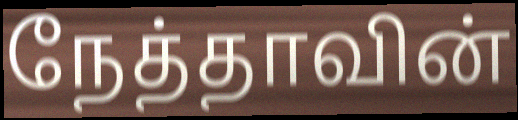
நேத்தாவின்